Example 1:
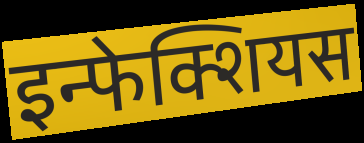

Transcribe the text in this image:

इन्फेक्शियस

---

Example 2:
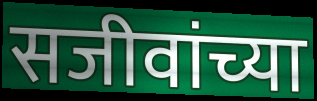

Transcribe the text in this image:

सजीवांच्या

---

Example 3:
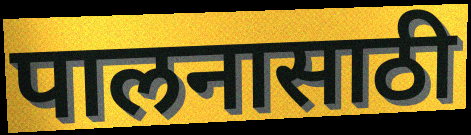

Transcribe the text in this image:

पालनासाठी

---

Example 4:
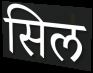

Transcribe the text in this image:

सिल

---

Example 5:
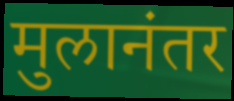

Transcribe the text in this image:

मुलानंतर